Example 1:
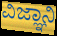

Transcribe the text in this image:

ವಿಜ್ಞಾನಿ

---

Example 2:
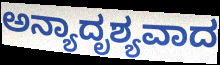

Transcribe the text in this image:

ಅನ್ಯಾದೃಶ್ಯವಾದ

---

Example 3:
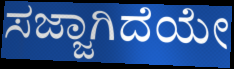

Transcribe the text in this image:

ಸಜ್ಜಾಗಿದೆಯೇ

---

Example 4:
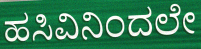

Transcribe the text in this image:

ಹಸಿವಿನಿಂದಲೇ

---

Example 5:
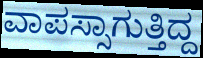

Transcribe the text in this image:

ವಾಪಸ್ಸಾಗುತ್ತಿದ್ದ